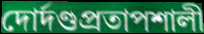
দোর্দণ্ডপ্রতাপশালী